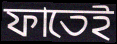
ফাতেই